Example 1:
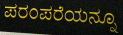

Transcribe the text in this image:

ಪರಂಪರೆಯನ್ನೂ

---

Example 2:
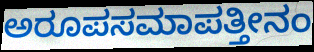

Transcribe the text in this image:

ಅರೂಪಸಮಾಪತ್ತೀನಂ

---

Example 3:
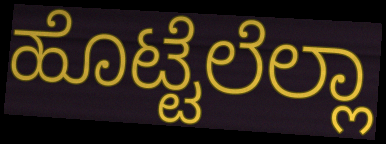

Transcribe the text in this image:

ಹೊಟ್ಟೆಲೆಲ್ಲಾ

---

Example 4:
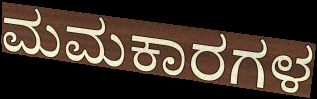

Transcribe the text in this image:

ಮಮಕಾರಗಳ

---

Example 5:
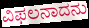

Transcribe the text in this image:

ವಿಫಲನಾದನು